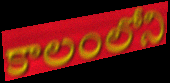
కాలంలోని